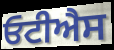
ਓਟੀਐਸ